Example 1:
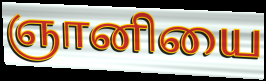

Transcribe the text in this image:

ஞானியை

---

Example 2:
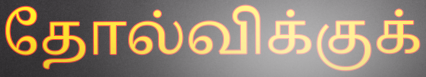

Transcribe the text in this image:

தோல்விக்குக்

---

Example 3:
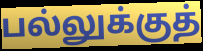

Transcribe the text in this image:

பல்லுக்குத்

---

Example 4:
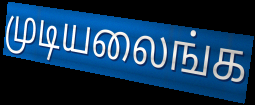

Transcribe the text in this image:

முடியலைங்க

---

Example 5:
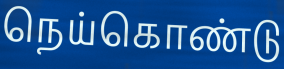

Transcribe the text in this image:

நெய்கொண்டு